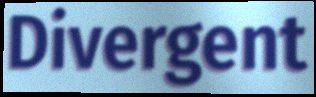
Divergent